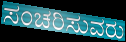
ಸಂಚರಿಸುವರು